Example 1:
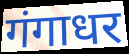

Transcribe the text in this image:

गंगाधर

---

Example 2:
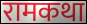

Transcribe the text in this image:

रामकथा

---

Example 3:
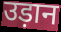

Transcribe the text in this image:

उड़ान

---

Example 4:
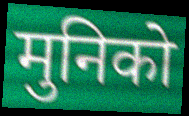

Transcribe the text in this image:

मुनिको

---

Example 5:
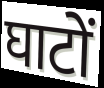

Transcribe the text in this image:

घाटों